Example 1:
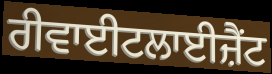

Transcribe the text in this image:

ਰੀਵਾਈਟਲਾਈਜ਼ੈਂਟ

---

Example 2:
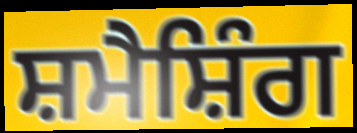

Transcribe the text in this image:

ਸ਼ਮੈਸ਼ਿੰਗ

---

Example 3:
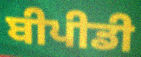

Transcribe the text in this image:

ਬੀਪੀਡੀ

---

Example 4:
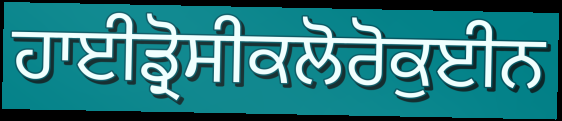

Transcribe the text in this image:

ਹਾਈਡ੍ਰੋਸੀਕਲੋਰੋਕੁਈਨ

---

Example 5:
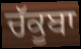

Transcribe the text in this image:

ਚੱਕੂਬਾ